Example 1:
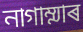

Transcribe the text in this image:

নাগাম্মাৰ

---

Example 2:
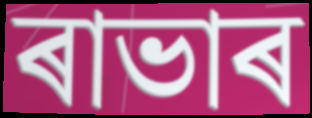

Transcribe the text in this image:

ৰাভাৰ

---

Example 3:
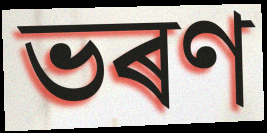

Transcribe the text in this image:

ভৰণ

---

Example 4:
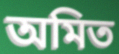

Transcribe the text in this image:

অমিত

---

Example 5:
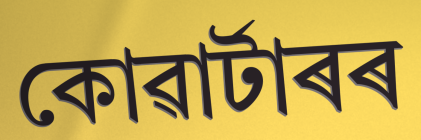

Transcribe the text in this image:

কোৱাৰ্টাৰৰ